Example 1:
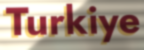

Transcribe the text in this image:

Turkiye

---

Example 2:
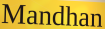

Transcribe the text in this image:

Mandhan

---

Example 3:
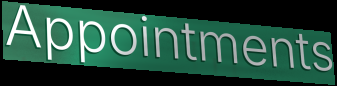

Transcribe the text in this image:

Appointments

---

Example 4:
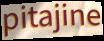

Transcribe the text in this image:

pitajine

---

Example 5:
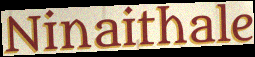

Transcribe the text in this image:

Ninaithale